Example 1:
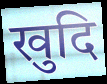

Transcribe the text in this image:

खुदि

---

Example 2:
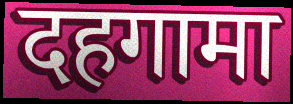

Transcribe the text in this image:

दहगामा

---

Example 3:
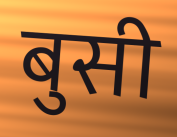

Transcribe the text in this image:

बुसी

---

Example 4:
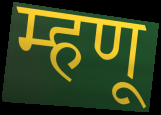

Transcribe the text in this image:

म्हणू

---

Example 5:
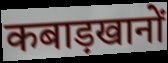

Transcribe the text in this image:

कबाड़खानों